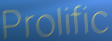
Prolific